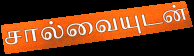
சால்வையுடன்